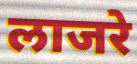
लाजरे